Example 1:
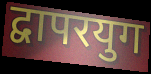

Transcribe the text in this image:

द्वापरयुग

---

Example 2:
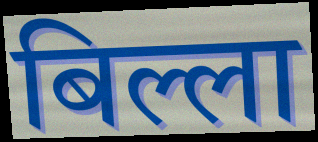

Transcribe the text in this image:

बिल्ला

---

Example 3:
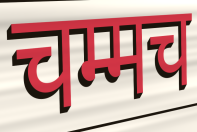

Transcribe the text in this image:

चम्मच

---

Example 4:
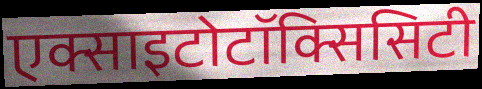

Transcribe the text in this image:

एक्साइटोटॉक्सिसिटी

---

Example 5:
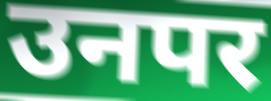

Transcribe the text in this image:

उनपर